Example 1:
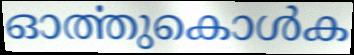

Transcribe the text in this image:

ഓൎത്തുകൊൾക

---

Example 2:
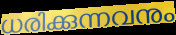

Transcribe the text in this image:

ധരിക്കുന്നവനും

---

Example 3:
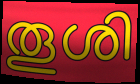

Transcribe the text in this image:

തൂശി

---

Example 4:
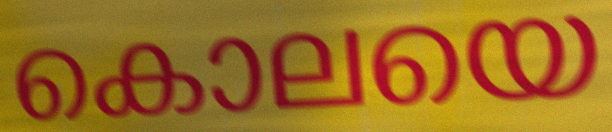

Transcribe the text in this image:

കൊലയെ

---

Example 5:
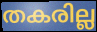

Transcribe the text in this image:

തകരില്ല